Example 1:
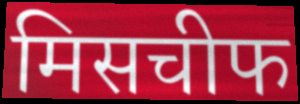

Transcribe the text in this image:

मिसचीफ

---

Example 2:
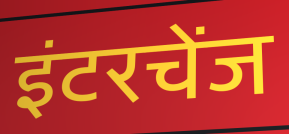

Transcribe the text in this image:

इंटरचेंज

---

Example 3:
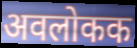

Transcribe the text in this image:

अवलोकक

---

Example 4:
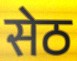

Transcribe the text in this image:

सेठ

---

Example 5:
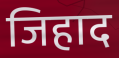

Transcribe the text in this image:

जिहाद